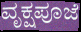
ವೃಕ್ಷಪೂಜೆ